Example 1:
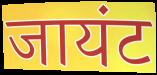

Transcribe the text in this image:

जायंट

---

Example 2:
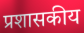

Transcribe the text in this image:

प्रशासकीय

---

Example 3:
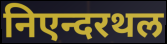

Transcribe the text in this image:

निएन्दरथल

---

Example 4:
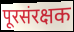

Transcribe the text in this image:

पूरसंरक्षक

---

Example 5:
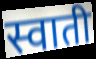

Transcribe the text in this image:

स्वाती